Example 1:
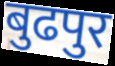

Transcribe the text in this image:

बुढपुर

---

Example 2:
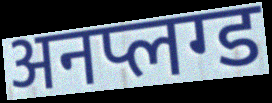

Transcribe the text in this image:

अनप्लग्ड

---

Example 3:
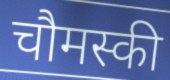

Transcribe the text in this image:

चौमस्की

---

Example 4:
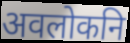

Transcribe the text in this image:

अवलोकनि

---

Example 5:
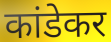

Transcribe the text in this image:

कांडेकर